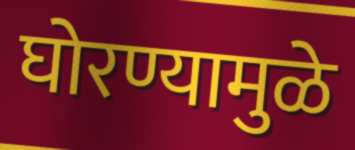
घोरण्यामुळे